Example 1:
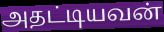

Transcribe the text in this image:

அதட்டியவன்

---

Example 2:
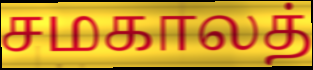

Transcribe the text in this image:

சமகாலத்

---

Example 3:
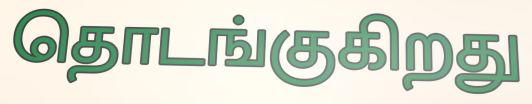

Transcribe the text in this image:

தொடங்குகிறது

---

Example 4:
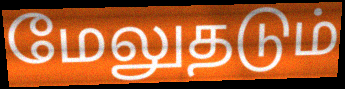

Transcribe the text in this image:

மேலுதடும்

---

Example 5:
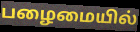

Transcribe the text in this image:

பழைமையில்